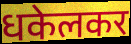
धकेलकर